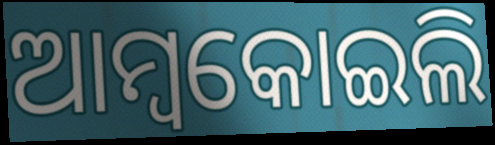
ଆମ୍ବକୋଇଲି